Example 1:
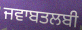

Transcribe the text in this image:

ਜਵਾਬਤਲਬੀ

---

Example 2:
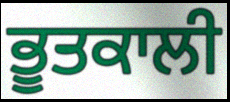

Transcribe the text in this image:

ਭੂਤਕਾਲੀ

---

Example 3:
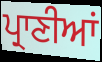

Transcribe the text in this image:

ਪ੍ਰਾਣੀਆਂ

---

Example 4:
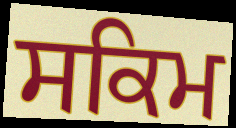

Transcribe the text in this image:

ਸਕਿਮ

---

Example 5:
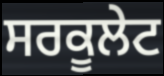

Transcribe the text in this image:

ਸਰਕੂਲੇਟ